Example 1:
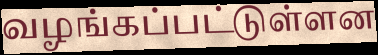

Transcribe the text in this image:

வழங்கப்பட்டுள்ளன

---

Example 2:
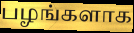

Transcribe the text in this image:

பழங்களாக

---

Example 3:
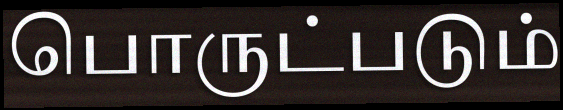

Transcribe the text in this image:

பொருட்படும்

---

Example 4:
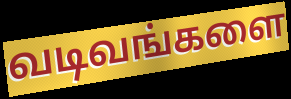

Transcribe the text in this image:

வடிவங்களை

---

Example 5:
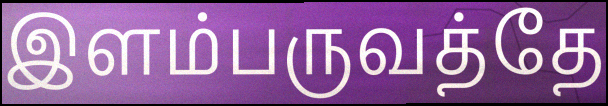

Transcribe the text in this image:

இளம்பருவத்தே